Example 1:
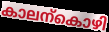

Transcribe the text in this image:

കാലന്കൊഴി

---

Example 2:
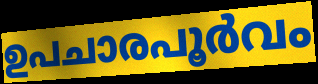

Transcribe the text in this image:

ഉപചാരപൂർവം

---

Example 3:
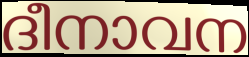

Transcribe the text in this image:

ദീനാവന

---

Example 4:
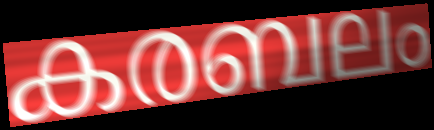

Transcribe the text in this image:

കരബലം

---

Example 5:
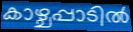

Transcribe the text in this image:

കാഴ്ചപ്പാടിൽ